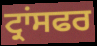
ਟ੍ਰਾਂਸਫਰ